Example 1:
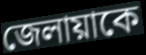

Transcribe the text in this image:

জেলায়াকে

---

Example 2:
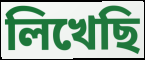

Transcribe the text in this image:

লিখেছি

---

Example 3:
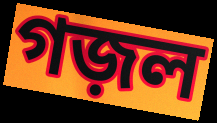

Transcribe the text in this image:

গজ়ল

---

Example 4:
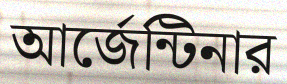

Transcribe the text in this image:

আর্জেন্টিনার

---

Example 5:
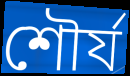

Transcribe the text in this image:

শৌর্য